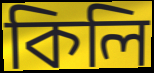
কিলি